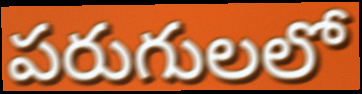
పరుగులలో